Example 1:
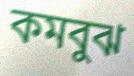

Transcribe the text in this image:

কমবুঝ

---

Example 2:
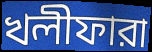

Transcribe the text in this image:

খলীফারা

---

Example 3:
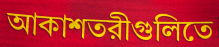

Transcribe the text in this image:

আকাশতরীগুলিতে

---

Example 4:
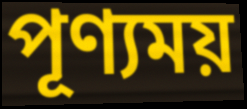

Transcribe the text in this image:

পূণ্যময়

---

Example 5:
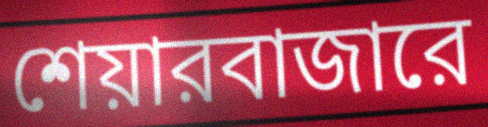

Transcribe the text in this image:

শেয়ারবাজারে